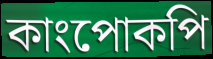
কাংপোকপি